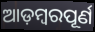
ଆଡ଼ମ୍ବରପୂର୍ଣ